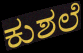
ಕುಶಲೆ